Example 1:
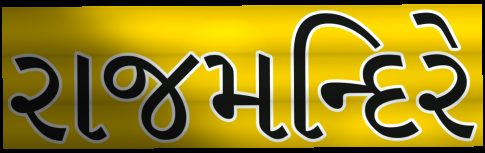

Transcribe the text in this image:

રાજમન્દિરે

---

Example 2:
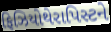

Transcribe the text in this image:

ફિઝિયોથેરાપિસ્ટને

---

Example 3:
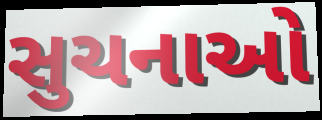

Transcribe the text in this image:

સુચનાઓ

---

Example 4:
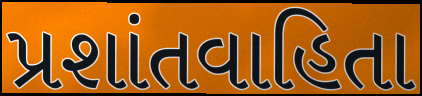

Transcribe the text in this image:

પ્રશાંતવાહિતા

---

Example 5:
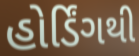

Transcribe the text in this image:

હોર્ડિંગથી